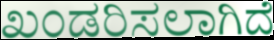
ಖಂಡರಿಸಲಾಗಿದೆ